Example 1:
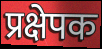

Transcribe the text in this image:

प्रक्षेपक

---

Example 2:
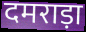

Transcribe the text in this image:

दमराड़ा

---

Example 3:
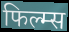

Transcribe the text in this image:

फिल्म्स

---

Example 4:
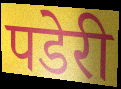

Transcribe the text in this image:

पडेरी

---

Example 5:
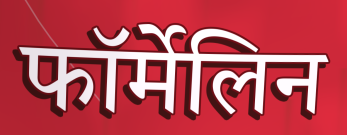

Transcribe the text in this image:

फॉर्मेलिन